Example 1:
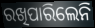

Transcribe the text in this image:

ରଖିପାରିଲେନି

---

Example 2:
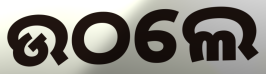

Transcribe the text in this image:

ଉଠଲେ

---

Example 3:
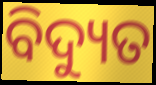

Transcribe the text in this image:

ବିଦ୍ୟୁତ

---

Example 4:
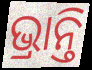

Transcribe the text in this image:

ଭ୍ରାନ୍ତି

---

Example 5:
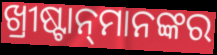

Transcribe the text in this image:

ଖ୍ରୀଷ୍ଟାନ୍‌ମାନଙ୍କର